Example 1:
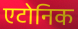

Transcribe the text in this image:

एटोनिक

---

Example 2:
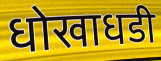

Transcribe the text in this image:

धोखाधडी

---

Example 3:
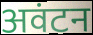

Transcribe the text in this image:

अवंटन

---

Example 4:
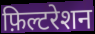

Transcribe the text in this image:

फ़िल्टरेशन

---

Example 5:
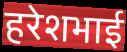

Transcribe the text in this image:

हरेशभाई